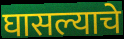
घासल्याचे